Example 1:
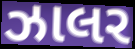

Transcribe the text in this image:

ઝાલર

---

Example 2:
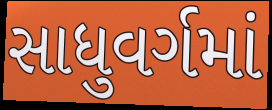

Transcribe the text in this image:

સાધુવર્ગમાં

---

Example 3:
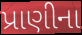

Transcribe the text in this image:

પ્રાણીના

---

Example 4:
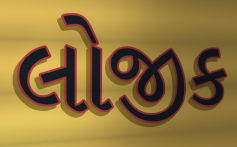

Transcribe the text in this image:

લોજીક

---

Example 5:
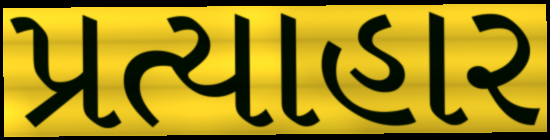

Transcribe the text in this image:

પ્રત્યાહાર